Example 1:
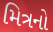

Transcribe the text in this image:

મિત્રનો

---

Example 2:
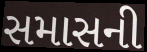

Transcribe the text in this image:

સમાસની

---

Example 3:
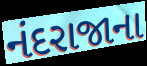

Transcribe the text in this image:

નંદરાજાના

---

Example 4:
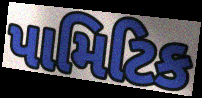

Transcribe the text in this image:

પામિટિક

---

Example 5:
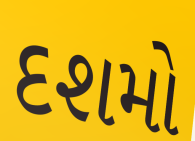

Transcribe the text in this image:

દશમો